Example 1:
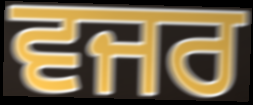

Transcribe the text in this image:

ਵਜਰ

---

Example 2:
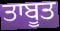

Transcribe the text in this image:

ਤਾਬੂਤ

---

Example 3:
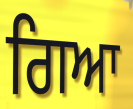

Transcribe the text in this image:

ਗਿਆ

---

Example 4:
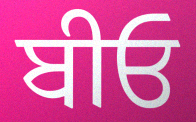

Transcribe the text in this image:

ਬੀਓ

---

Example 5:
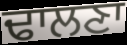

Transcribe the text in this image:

ਢਾਲਣਾ